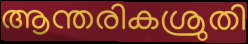
ആന്തരികശ്രുതി